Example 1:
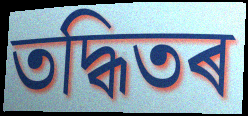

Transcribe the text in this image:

তদ্ধিতৰ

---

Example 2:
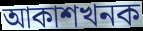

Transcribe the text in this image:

আকাশখনক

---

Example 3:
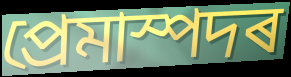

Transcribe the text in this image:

প্ৰেমাস্পদৰ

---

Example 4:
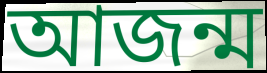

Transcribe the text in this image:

আজন্ম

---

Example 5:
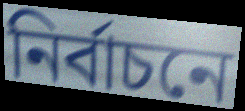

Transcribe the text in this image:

নিৰ্বাচনে